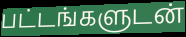
பட்டங்களுடன்